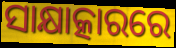
ସାକ୍ଷାତ୍କାରରେ